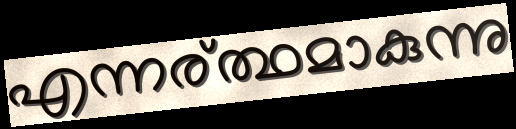
എന്നര്ത്ഥമാകുന്നു